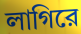
লাগিরে